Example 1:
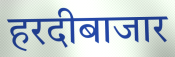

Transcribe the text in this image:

हरदीबाजार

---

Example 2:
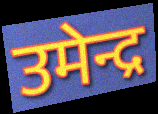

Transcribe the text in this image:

उमेन्द्र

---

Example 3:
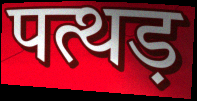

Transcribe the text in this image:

पत्थड़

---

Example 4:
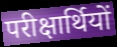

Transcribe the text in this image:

परीक्षार्थियों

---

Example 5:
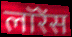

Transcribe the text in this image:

लॉरेंस